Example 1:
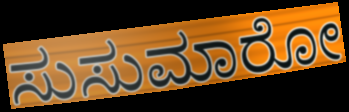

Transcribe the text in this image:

ಸುಸುಮಾರೋ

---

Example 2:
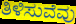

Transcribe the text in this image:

ತಿಳಿಸುವೆವು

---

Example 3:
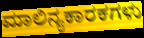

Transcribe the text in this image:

ಮಾಲಿನ್ಯಕಾರಕಗಳು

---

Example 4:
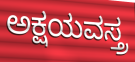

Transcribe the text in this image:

ಅಕ್ಷಯವಸ್ತ್ರ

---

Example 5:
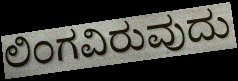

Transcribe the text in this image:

ಲಿಂಗವಿರುವುದು